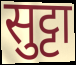
सुट्टा